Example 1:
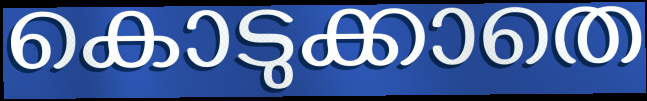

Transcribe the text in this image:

കൊടുക്കാതെ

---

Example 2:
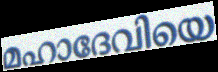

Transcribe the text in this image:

മഹാദേവിയെ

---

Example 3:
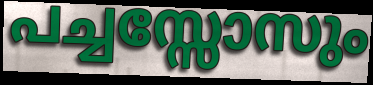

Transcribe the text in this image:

പച്ചസ്സോസും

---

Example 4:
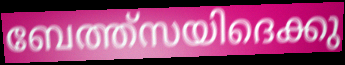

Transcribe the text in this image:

ബേത്ത്സയിദെക്കു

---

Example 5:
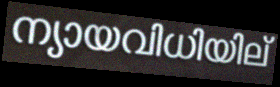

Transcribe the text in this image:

ന്യായവിധിയില്